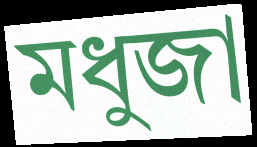
মধুজা